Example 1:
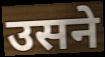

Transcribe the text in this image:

उसने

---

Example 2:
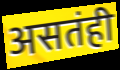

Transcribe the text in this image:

असतंही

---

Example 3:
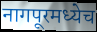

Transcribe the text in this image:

नागपूरमध्येच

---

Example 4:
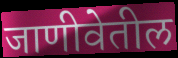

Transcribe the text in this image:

जाणीवेतील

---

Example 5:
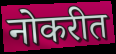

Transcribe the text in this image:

नोकरीत